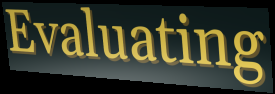
Evaluating